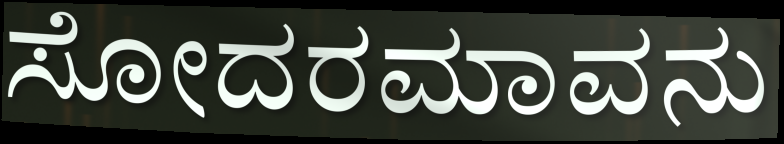
ಸೋದರಮಾವನು